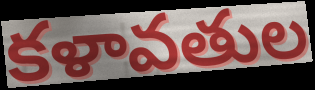
కళావతుల